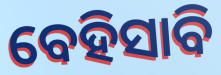
ବେହିସାବି